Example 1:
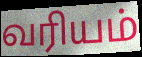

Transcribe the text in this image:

வரியம்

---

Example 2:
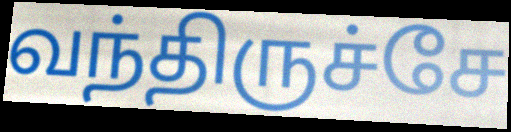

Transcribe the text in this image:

வந்திருச்சே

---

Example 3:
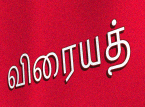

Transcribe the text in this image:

விரையத்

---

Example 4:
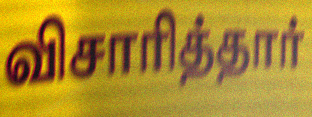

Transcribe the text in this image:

விசாரித்தார்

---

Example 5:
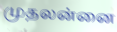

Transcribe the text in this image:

முதலன்னை